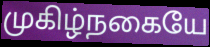
முகிழ்நகையே